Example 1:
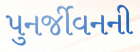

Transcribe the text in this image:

પુનર્જીવનની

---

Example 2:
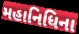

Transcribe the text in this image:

મહાનિધિના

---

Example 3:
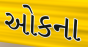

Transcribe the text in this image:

ઓકના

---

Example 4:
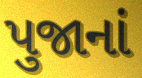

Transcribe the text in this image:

પુજાનાં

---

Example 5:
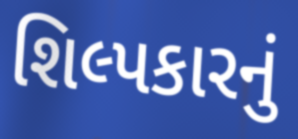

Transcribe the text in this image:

શિલ્પકારનું